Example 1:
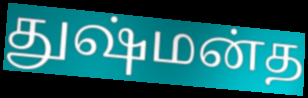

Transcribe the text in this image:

துஷ்மன்த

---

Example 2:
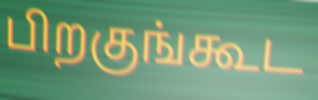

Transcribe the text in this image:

பிறகுங்கூட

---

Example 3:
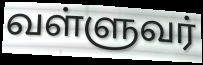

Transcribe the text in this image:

வள்ளுவர்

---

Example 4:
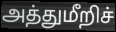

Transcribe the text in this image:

அத்துமீறிச்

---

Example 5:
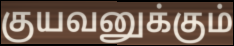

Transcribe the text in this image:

குயவனுக்கும்